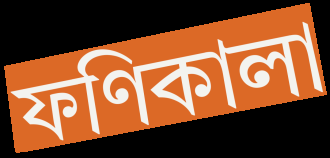
ফণিকালা